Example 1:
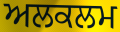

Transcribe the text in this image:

ਅਲਕਲਮ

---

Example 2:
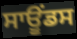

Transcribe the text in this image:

ਸਾਊਂਡਸ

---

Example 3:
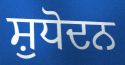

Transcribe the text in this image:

ਸ਼ੁਧੋਦਨ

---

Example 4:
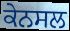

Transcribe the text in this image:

ਕੇਨਸਲ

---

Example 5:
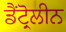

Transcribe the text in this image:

ਡੈਂਟ੍ਰੋਲੀਨ